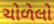
ચોળેલો